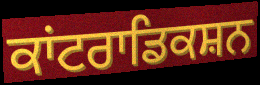
ਕਾਂਟਰਾਡਿਕਸ਼ਨ